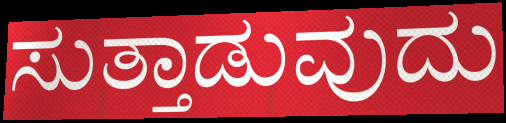
ಸುತ್ತಾಡುವುದು